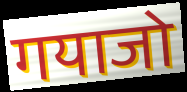
गयाजो